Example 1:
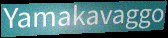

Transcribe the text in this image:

Yamakavaggo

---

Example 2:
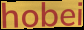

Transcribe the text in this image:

hobei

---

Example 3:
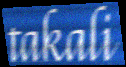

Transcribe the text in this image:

takali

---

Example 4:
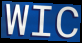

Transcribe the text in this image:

WIC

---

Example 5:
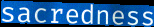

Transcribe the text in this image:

sacredness